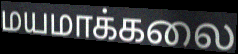
மயமாக்கலை